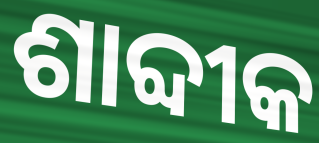
ଶାବ୍ଦୀକ